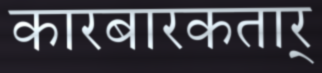
कारबारकतार्